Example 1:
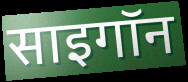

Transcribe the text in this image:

साइगॉन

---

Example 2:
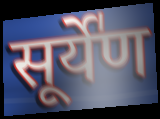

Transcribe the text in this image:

सूर्ये॑ण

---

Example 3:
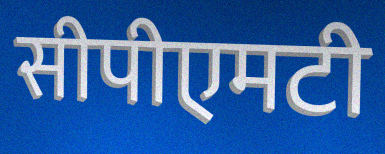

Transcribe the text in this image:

सीपीएमटी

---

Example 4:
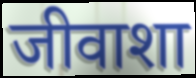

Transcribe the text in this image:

जीवाशा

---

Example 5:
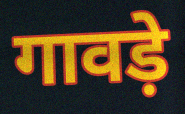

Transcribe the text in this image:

गावड़े